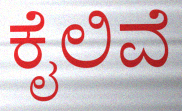
ಕೈಲಿವೆ